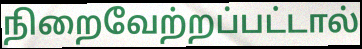
நிறைவேற்றப்பட்டால்